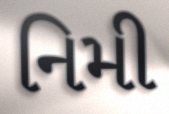
નિમી